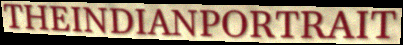
THEINDIANPORTRAIT